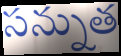
సన్నుత